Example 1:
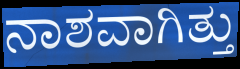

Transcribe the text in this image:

ನಾಶವಾಗಿತ್ತು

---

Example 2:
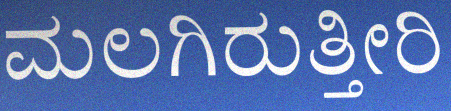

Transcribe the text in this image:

ಮಲಗಿರುತ್ತೀರಿ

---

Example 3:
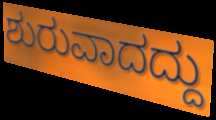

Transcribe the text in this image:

ಶುರುವಾದದ್ದು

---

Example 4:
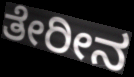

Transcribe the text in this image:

ತೇರೀನ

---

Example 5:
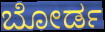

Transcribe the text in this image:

ಬೋರ್ಡ